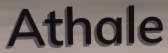
Athale